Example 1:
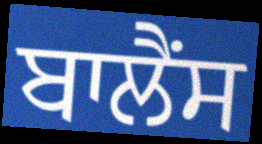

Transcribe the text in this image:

ਬਾਲੈਂਸ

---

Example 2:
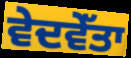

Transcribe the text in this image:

ਵੇਦਵੇੱਤਾ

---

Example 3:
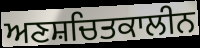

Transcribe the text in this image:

ਅਣਸ਼ਚਿਤਕਾਲੀਨ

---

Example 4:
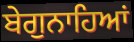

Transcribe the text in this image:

ਬੇਗੁਨਾਹਿਆਂ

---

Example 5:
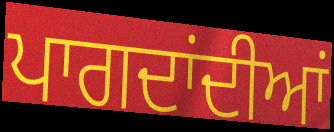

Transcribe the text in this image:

ਪਾਗਦਾਂਦੀਆਂ